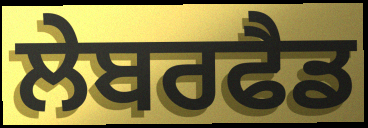
ਲੇਬਰਫੈਡ